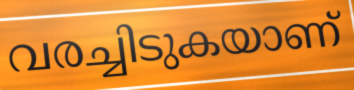
വരച്ചിടുകയാണ്